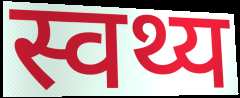
स्वथ्य